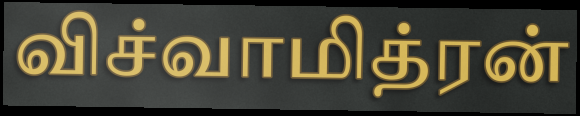
விச்வாமித்ரன்